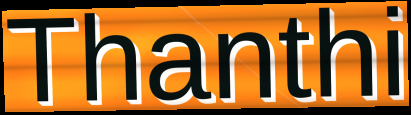
Thanthi